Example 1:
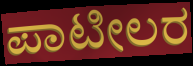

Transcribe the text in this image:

ಪಾಟೀಲರ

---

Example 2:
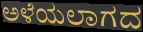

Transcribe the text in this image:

ಅಳೆಯಲಾಗದ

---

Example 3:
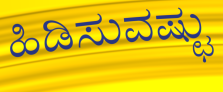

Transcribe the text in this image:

ಹಿಡಿಸುವಷ್ಟು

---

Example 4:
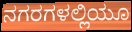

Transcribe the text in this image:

ನಗರಗಳಲ್ಲಿಯೂ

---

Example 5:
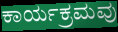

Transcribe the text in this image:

ಕಾರ್ಯಕ್ರಮವು